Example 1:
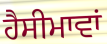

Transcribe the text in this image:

ਹੈਸੀਮਾਵਾਂ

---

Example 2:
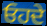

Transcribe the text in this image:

ਓਹਦੇ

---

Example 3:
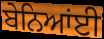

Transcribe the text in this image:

ਬੇਨਿਆਂਈ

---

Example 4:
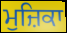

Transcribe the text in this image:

ਮੁਜ਼ਿਕਾ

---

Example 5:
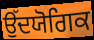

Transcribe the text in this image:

ਉੱਦਯੋਗਿਕ